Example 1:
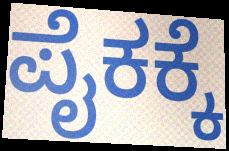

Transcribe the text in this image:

ಪೈಕಕ್ಕೆ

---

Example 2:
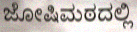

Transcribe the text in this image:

ಜೋಷಿಮಠದಲ್ಲಿ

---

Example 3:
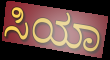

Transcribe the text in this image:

ಸಿಯಾ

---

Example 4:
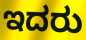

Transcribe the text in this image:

ಇದರು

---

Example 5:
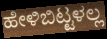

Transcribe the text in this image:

ಹೇಳಿಬಿಟ್ಟಳಲ್ಲ